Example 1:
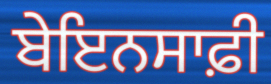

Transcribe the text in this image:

ਬੇਇਨਸਾਫ਼ੀ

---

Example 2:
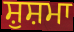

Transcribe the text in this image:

ਸ਼ੁਸ਼ਮਾ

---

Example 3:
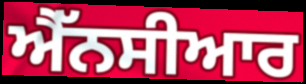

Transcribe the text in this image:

ਐੱਨਸੀਆਰ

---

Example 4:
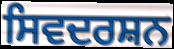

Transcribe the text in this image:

ਸਿਵਦਰਸ਼ਨ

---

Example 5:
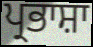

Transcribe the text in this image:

ਪ੍ਰਭਾਸ਼ਾ